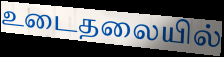
உடைதலையில்